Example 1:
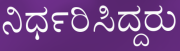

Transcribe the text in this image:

ನಿರ್ಧರಿಸಿದ್ದರು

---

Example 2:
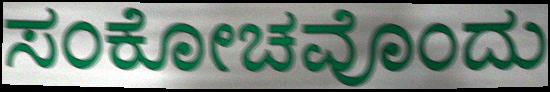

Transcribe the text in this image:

ಸಂಕೋಚವೊಂದು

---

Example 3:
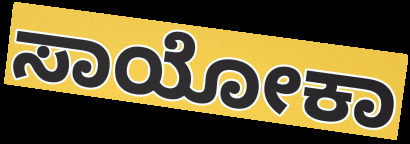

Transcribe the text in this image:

ಸಾಯೋಕಾ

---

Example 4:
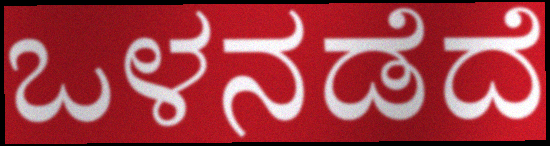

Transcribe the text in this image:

ಒಳನಡೆದೆ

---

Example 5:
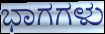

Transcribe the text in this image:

ಭಾಗಗಳು